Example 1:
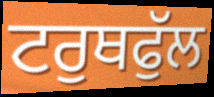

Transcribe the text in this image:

ਟਰੁਥਫੁੱਲ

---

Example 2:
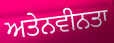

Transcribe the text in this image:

ਅਤੇਨਵੀਨਤਾ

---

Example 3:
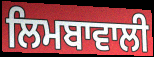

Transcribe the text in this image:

ਲਿਮਬਾਵਾਲੀ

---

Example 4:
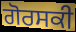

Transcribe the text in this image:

ਗੋਰਸਕੀ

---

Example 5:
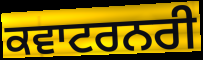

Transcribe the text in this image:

ਕਵਾਟਰਨਰੀ